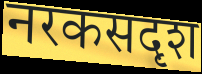
नरकसदृश